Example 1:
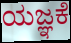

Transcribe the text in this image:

ಯಜ್ಞಕೆ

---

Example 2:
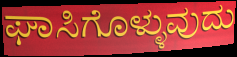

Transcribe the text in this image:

ಘಾಸಿಗೊಳ್ಳುವುದು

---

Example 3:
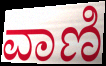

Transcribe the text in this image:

ವಾಣಿ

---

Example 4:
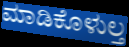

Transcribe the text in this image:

ಮಾಡಿಕೊಳುಲ್ತ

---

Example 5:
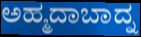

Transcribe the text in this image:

ಅಹ್ಮದಾಬಾದ್ನ